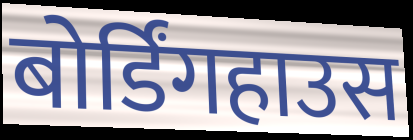
बोर्डिंगहाउस